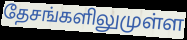
தேசங்களிலுமுள்ள